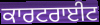
ਕਾਰਟਰਾਈਟ